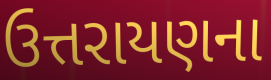
ઉત્તરાયણના